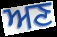
ਅਣ